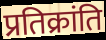
प्रतिक्रांति